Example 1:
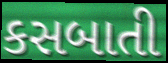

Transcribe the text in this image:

કસબાતી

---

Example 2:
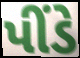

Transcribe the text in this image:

પીંડે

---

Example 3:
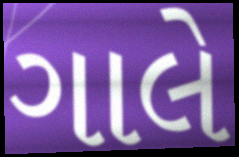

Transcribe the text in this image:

ગાલે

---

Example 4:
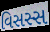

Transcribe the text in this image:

વિસસ્સ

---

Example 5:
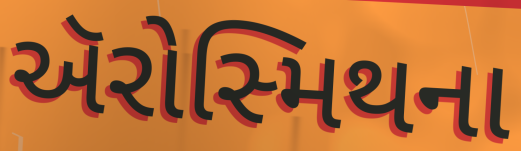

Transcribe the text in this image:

ઍરોસ્મિથના